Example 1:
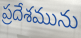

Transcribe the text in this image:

ప్రదేశమును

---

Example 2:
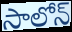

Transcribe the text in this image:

సాలోన్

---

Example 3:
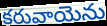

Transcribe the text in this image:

కరువాయెను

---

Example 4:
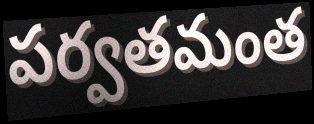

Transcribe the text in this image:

పర్వతమంత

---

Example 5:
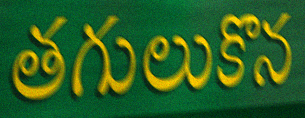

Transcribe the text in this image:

తగులుకొన